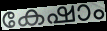
കേഷാം